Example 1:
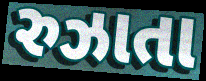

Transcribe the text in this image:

રુઝાતા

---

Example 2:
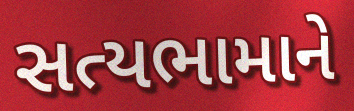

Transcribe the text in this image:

સત્યભામાને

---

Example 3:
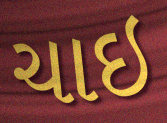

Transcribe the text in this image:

ચાઇ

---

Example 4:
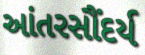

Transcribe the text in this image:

આંતરસૌંદર્ય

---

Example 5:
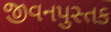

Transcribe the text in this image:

જીવનપુસ્તક